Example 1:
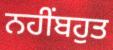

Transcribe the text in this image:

ਨਹੀਂਬਹੁਤ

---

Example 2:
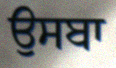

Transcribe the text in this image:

ਉਸਬਾ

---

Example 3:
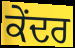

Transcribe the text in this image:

ਕੇੰਦਰ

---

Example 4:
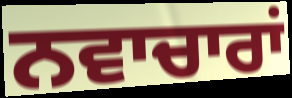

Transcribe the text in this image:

ਨਵਾਚਾਰਾਂ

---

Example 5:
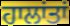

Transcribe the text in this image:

ਹਾਲਾਂਤਾਂ